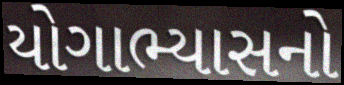
યોગાભ્યાસનો